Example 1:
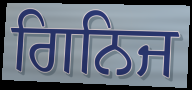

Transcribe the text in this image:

ਗਿਨਿਜ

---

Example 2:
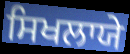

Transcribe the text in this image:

ਸਿਖਲਾਯੇ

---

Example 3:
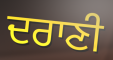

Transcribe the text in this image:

ਦਰਾਣੀ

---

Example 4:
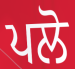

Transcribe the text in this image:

ਪਲੋ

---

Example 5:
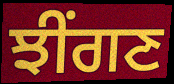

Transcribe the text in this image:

ਝੀਂਗਣ